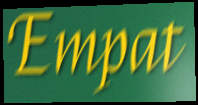
Empat